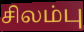
சிலம்பு